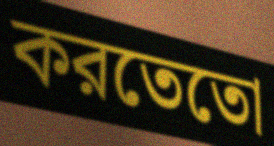
করতেতো